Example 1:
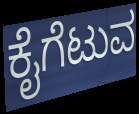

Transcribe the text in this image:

ಕೈಗೆಟುವ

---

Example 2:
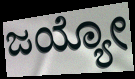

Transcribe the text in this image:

ಜಯ್ಯೋ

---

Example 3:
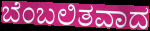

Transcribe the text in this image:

ಬೆಂಬಲಿತವಾದ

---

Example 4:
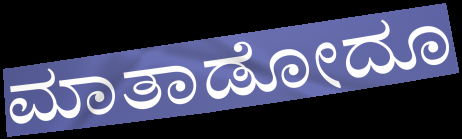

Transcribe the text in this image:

ಮಾತಾಡೋದೂ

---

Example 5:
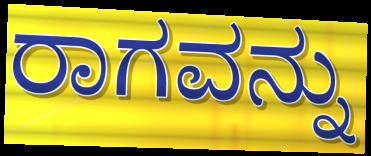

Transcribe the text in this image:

ರಾಗವನ್ನು